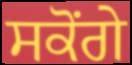
ਸਕੋਂਗੇ